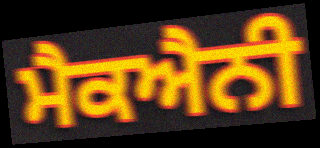
ਮੈਕਐਨੀ